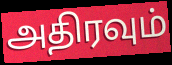
அதிரவும்